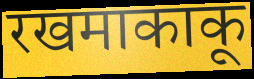
रखमाकाकू